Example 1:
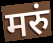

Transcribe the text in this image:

मरुं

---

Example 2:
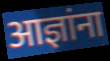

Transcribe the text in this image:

आज्ञांना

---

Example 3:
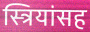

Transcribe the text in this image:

स्त्रियांसह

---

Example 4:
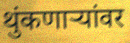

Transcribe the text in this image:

थुंकणाऱ्यांवर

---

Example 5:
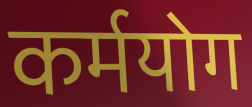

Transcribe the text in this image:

कर्मयोग